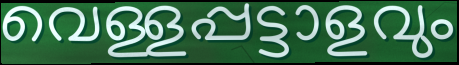
വെള്ളപ്പട്ടാളവും